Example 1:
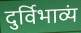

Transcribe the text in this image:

दुर्विभाव्यं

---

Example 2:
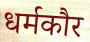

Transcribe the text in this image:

धर्मकौर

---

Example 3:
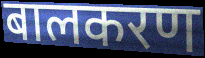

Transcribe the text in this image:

बालकरण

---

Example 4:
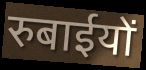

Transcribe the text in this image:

रुबाईयों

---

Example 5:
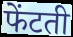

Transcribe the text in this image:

फेंटती